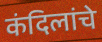
कंदिलांचे